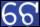
ଟେ